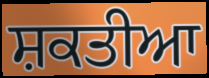
ਸ਼ਕਤੀਆ